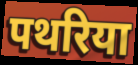
पथरिया